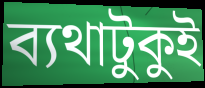
ব্যথাটুকুই